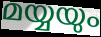
മയ്യയും